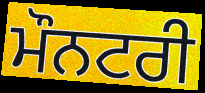
ਮੌਨਟਰੀ